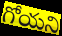
గోయని